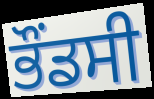
ਭੌਂਡਸੀ